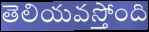
తెలియవస్తోంది